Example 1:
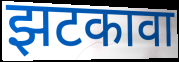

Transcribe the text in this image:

झटकावा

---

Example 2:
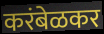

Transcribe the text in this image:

करंबेळकर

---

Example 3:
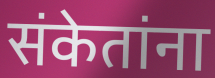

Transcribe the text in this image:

संकेतांना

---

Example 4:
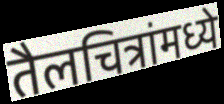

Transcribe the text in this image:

तैलचित्रांमध्ये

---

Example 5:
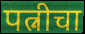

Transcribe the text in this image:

पत्नीचा